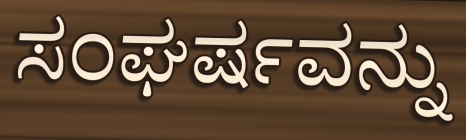
ಸಂಘರ್ಷವನ್ನು